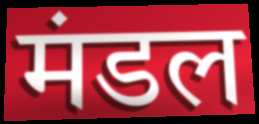
मंडल